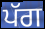
ਪੱਗ